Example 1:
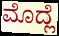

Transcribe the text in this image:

ಮೊದ್ಲೆ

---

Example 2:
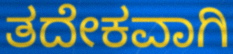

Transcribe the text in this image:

ತದೇಕವಾಗಿ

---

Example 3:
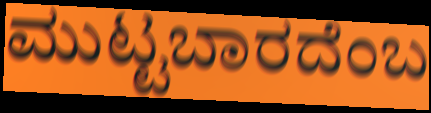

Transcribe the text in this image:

ಮುಟ್ಟಬಾರದೆಂಬ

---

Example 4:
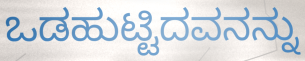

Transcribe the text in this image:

ಒಡಹುಟ್ಟಿದವನನ್ನು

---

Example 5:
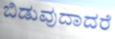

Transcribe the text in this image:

ಬಿಡುವುದಾದರೆ